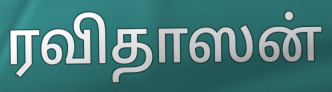
ரவிதாஸன்